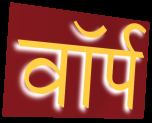
वॉर्प